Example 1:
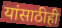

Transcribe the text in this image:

यांसाठीही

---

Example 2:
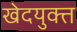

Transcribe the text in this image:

खेदयुक्त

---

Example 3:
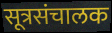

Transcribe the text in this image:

सूत्रसंचालक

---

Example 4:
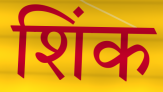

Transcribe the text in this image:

शिंक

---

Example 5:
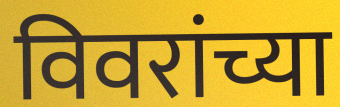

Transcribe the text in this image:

विवरांच्या